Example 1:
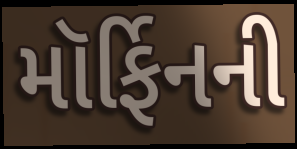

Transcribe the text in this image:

મૉર્ફિનની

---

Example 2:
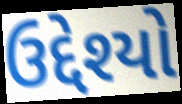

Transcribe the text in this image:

ઉદ્દેશ્યો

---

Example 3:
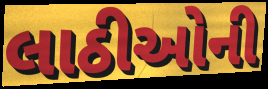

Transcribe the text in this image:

લાઠીઓની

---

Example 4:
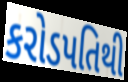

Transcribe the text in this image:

કરોડપતિથી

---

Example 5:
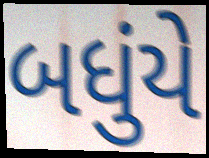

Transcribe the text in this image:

બધુંયે